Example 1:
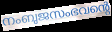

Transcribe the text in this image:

നംബുജസംഭവന്റെ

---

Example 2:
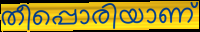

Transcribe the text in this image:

തീപ്പൊരിയാണ്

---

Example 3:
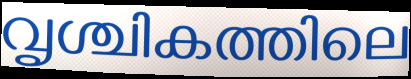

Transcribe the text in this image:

വൃശ്ചികത്തിലെ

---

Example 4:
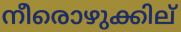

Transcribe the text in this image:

നീരൊഴുക്കില്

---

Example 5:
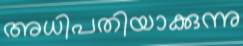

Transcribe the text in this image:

അധിപതിയാക്കുന്നു